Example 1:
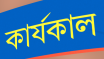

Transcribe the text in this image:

কাৰ্যকাল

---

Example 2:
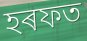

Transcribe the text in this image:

হৰফত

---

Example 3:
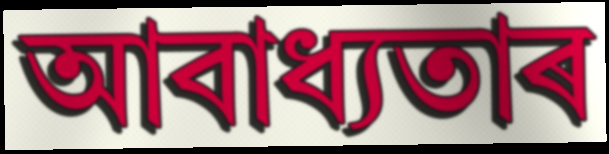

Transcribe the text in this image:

আবাধ্যতাৰ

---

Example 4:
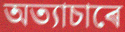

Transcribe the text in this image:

অত্যাচাৰে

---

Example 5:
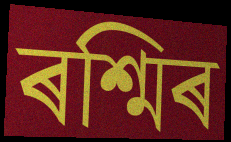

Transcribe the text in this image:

ৰশ্মিৰ